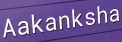
Aakanksha